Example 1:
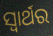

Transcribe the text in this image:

ସ୍ଵାର୍ଥର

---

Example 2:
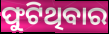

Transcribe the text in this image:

ଫୁଟିଥିବାର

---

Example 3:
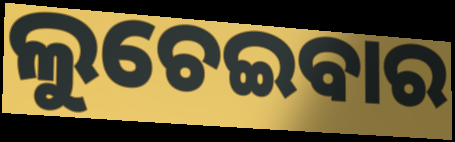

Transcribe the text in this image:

ଲୁଚେଇବାର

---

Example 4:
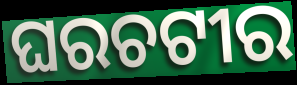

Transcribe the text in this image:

ଘରଚଟୀର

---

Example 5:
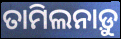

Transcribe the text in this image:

ତାମିଲନାଡ଼ୁ